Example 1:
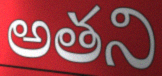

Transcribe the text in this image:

అతని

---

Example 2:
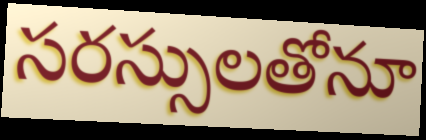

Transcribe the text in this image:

సరస్సులతోనూ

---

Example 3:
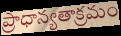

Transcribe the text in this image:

ప్రాధాన్యతాక్రమం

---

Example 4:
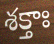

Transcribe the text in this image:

శక్తాః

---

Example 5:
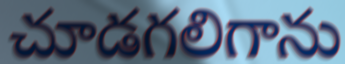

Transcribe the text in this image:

చూడగలిగాను